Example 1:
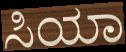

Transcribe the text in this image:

ಸಿಯಾ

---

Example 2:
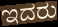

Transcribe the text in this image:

ಇದರು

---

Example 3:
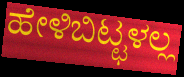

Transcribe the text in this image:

ಹೇಳಿಬಿಟ್ಟಳಲ್ಲ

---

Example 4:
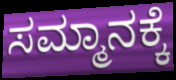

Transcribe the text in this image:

ಸಮ್ಮಾನಕ್ಕೆ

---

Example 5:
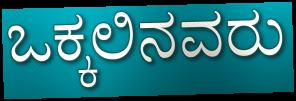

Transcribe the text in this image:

ಒಕ್ಕಲಿನವರು